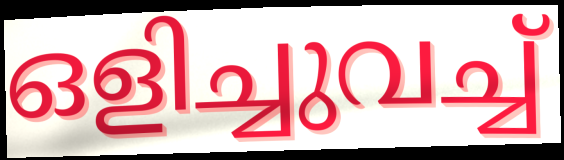
ഒളിച്ചുവച്ച്